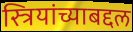
स्त्रियांच्याबद्दल